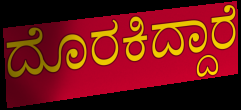
ದೊರಕಿದ್ದಾರೆ